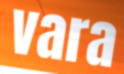
vara